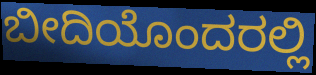
ಬೀದಿಯೊಂದರಲ್ಲಿ